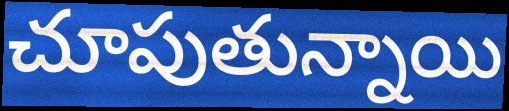
చూపుతున్నాయి